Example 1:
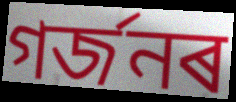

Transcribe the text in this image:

গৰ্জনৰ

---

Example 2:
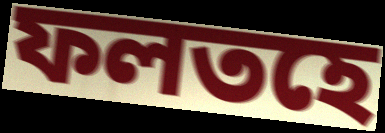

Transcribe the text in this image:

ফলতহে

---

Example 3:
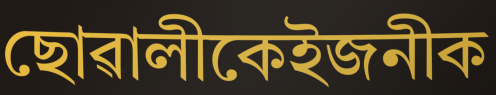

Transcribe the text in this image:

ছোৱালীকেইজনীক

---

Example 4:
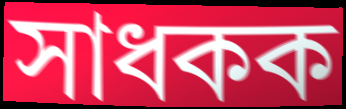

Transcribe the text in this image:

সাধকক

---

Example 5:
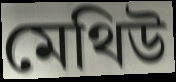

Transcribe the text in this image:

মেথিউ